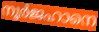
നൂർജഹാനെ